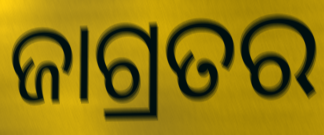
ଜାଗ୍ରତର